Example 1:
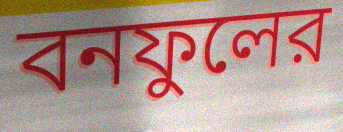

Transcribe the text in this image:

বনফুলের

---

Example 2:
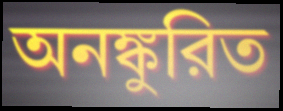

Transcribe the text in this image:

অনঙ্কুরিত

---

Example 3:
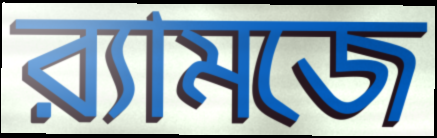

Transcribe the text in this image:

র‍্যামজে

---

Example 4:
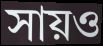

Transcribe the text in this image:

সায়ও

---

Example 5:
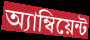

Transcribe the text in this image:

অ্যাম্বিয়েন্ট